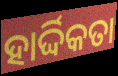
ହାର୍ଦ୍ଦିକତା